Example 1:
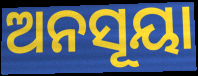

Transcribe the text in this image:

ଅନସୂୟା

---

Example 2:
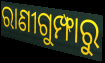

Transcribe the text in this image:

ରାଣୀଗୁମ୍ଫାରୁ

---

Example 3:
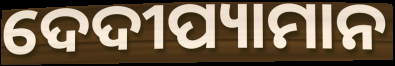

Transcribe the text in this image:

ଦେଦୀପ୍ୟାମାନ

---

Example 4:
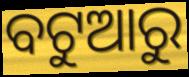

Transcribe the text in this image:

ବଟୁଆରୁ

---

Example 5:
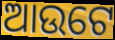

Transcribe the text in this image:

ଆଉଟେ